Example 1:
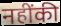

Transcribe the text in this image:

नहींकी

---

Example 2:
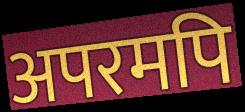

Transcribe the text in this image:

अपरमपि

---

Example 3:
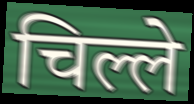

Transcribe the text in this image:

चिल्ले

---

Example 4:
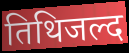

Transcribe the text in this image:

तिथिजल्द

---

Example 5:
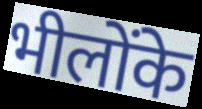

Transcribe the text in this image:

भीलोंके